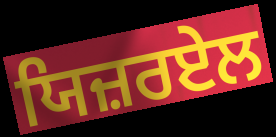
ਯਿਜ਼ਰਏਲ